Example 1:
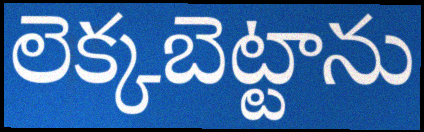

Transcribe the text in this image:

లెక్కబెట్టాను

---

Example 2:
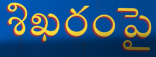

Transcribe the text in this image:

శిఖరంపై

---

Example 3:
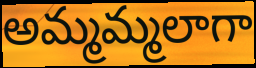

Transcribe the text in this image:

అమ్మమ్మలాగా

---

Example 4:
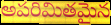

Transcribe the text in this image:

అపరిమితమైన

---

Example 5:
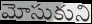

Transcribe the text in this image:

మోసుకుని